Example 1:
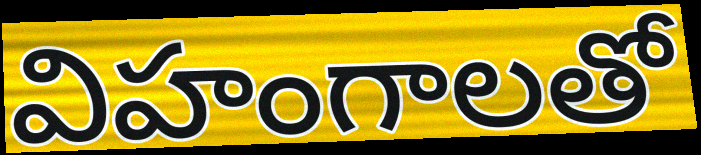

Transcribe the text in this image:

విహంగాలతో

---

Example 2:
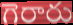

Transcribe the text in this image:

గెరారు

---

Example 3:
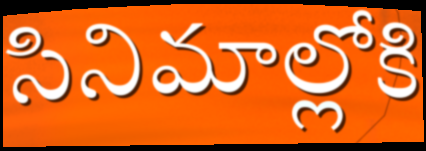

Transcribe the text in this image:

సినిమాల్లోకి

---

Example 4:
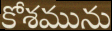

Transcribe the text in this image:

కోశమును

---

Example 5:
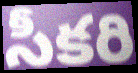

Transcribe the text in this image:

సీకరి